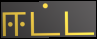
ஈட்ட